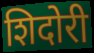
शिदोरी